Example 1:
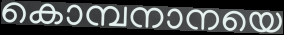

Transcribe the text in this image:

കൊമ്പനാനയെ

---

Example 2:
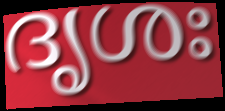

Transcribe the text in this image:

ദൃശഃ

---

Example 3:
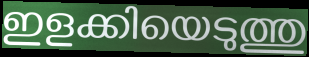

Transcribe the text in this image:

ഇളക്കിയെടുത്തു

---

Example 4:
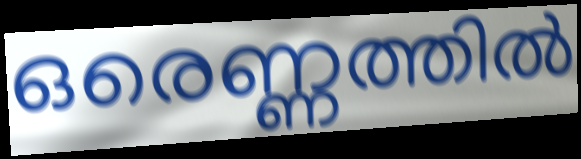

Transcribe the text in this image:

ഒരെണ്ണത്തിൽ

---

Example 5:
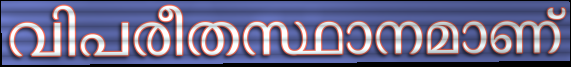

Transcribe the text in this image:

വിപരീതസ്ഥാനമാണ്